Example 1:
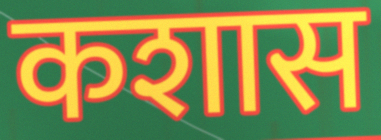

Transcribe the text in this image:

कशास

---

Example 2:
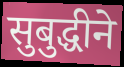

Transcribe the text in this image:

सुबुद्धीने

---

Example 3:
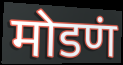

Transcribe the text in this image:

मोडणं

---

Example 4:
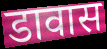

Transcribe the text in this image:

डावास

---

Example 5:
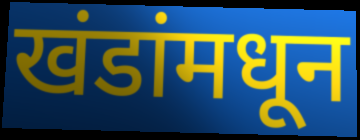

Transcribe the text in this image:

खंडांमधून